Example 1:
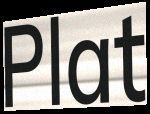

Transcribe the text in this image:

Plat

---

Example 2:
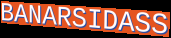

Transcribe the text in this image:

BANARSIDASS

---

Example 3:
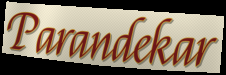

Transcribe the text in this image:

Parandekar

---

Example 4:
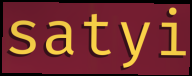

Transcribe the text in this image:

satyi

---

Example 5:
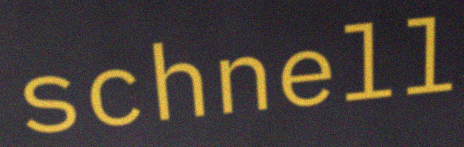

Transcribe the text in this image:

schnell